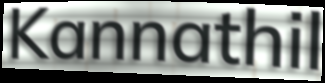
Kannathil